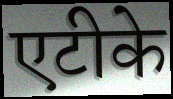
एटीके